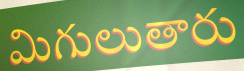
మిగులుతారు